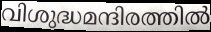
വിശുദ്ധമന്ദിരത്തിൽ